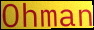
Ohman